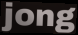
jong